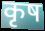
कृष